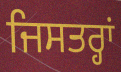
ਜਿਸਤਰ੍ਹਾਂ